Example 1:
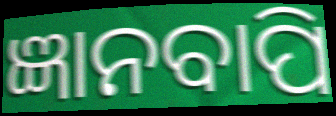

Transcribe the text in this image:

ଜ୍ଞାନବାପି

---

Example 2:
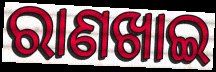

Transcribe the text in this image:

ରାଣଖାଇ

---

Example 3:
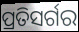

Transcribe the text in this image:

ପ୍ରତିସର୍ଗର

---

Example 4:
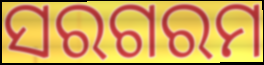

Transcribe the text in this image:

ସରଗରମ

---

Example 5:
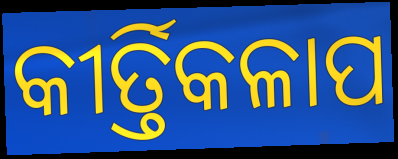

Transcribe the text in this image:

କୀର୍ତ୍ତିକଳାପ